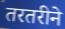
तरतरीने